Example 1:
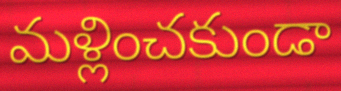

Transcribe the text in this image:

మళ్లించకుండా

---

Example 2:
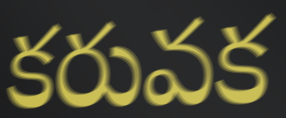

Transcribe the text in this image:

కరువక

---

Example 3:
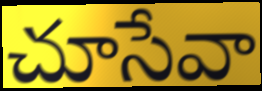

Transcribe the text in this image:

చూసేవా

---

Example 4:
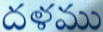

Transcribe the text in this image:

దళము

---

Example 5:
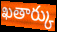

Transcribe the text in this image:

ఖతార్కు